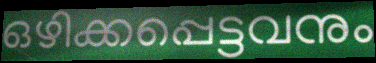
ഒഴിക്കപ്പെട്ടവനും